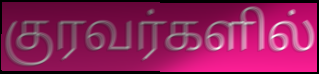
குரவர்களில்